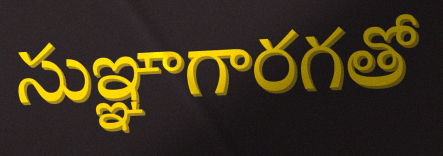
సుఞ్ఞాగారగతో